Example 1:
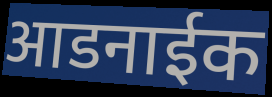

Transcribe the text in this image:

आडनाईक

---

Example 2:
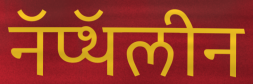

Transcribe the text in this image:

नॅप्थॅलीन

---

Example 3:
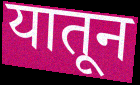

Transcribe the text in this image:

यातून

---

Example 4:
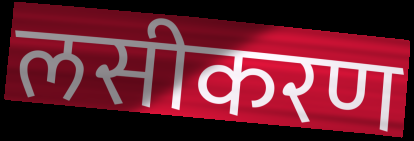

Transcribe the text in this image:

लसीकरण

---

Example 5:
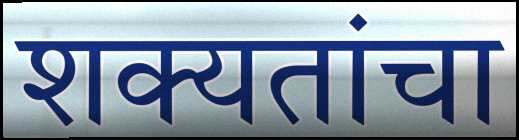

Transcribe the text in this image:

शक्यतांचा